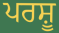
ਪਰਸ਼ੂ